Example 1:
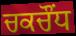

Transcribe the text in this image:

ਚਕਚੌਂਧ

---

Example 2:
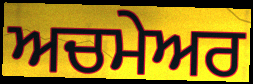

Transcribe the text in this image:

ਅਚਮੇਅਰ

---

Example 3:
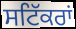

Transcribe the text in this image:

ਸਟਿੱਕਰਾਂ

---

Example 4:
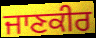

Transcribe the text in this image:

ਜਾਣਕੀਰ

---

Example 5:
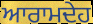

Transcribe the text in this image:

ਆਰਾਮਦੇਹ